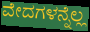
ವೇದಗಳನ್ನೆಲ್ಲ